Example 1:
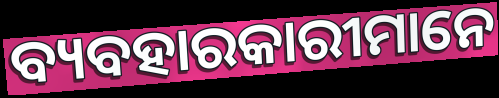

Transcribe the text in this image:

ବ୍ୟବହାରକାରୀମାନେ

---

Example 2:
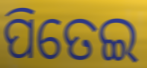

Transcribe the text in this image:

ପିତେଇ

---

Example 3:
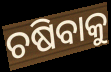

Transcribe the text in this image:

ଚଷିବାକୁ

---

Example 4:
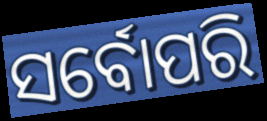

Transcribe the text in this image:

ସର୍ବୋପରି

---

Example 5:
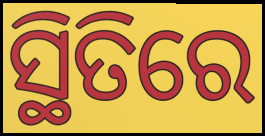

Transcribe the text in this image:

ସ୍ଥିତିରେ